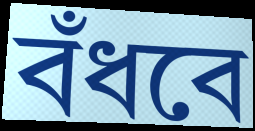
বঁধবে